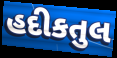
હદીકતુલ